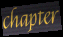
chapter